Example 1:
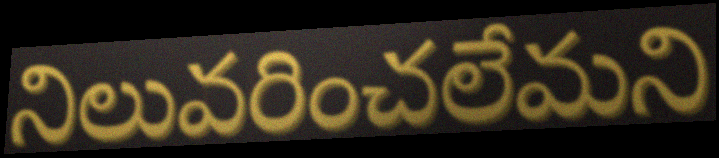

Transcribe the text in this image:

నిలువరించలేమని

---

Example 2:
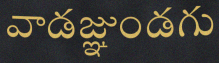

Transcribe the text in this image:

వాడజ్ఞుండగు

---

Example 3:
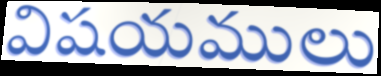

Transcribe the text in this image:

విషయములు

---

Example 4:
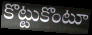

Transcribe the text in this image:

కొట్టుకొంటూ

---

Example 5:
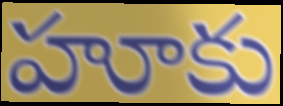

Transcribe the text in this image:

హూకు